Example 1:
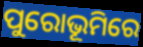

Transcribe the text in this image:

ପୁରୋଭୂମିରେ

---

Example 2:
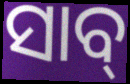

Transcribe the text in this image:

ସାବ୍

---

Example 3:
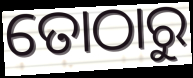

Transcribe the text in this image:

ତୋଠାରୁ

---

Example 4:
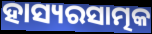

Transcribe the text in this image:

ହାସ୍ୟରସାତ୍ମକ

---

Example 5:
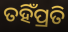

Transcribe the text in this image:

ତହିଁପ୍ରତି